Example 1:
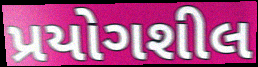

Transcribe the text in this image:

પ્રયોગશીલ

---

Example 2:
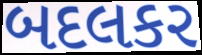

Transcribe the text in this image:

બદલકર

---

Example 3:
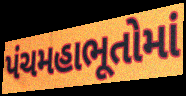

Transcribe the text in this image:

પંચમહાભૂતોમાં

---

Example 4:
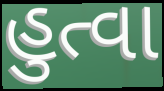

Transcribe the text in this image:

હુત્વા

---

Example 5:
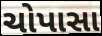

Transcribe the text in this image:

ચોપાસા